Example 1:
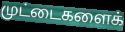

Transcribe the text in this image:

முட்டைகளைக்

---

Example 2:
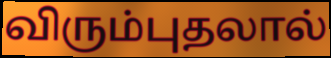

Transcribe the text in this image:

விரும்புதலால்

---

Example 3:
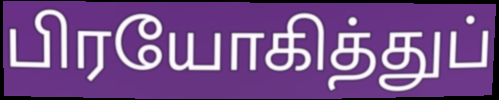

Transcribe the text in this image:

பிரயோகித்துப்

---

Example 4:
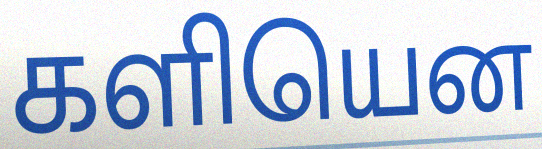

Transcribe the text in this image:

களியென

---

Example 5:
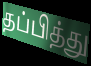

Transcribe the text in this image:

தப்பித்து